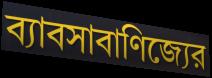
ব্যাবসাবাণিজ্যের